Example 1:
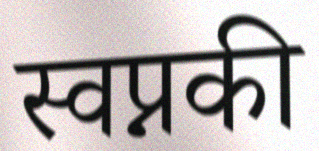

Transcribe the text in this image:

स्वप्नकी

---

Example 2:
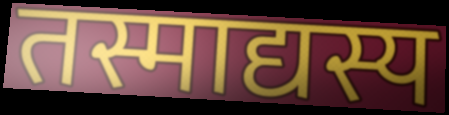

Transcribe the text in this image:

तस्माद्यस्य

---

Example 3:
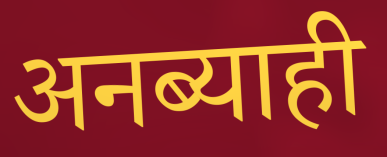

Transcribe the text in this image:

अनब्याही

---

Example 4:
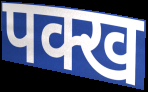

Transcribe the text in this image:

पक्ख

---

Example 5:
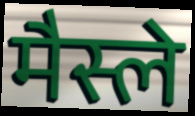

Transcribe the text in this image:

मैस्ले